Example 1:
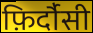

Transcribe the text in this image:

फ़िर्दौसी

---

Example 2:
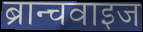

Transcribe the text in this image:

ब्रान्चवाइज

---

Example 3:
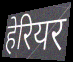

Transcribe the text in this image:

हेरियर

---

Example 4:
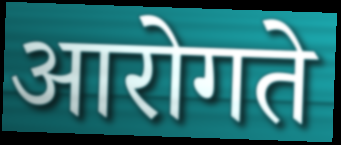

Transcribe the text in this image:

आरोगते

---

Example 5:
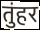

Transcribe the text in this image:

तुंहर